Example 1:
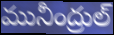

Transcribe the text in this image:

మునీంద్రుల్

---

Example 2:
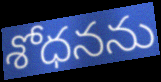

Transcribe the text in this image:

శోధనను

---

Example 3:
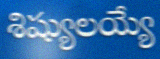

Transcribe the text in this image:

శిష్యులయ్యే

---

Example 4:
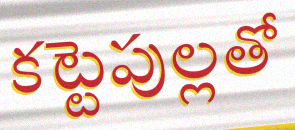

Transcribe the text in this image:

కట్టెపుల్లతో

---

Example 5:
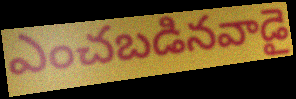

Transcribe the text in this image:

ఎంచబడినవాడై